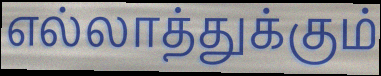
எல்லாத்துக்கும்